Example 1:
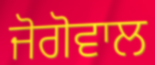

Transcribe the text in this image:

ਜੋਗੋਵਾਲ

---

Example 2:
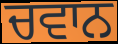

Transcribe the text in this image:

ਚਵਾਨ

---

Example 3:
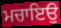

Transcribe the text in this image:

ਮਚਾਇਉ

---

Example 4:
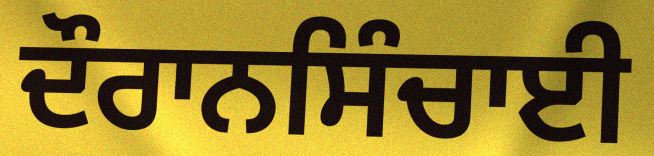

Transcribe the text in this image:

ਦੌਰਾਨਸਿੰਚਾਈ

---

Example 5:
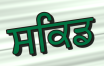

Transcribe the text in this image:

ਸਕਿਡ